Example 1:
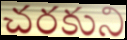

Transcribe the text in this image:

చరకుని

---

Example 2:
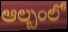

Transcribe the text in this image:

ఆల్బంలో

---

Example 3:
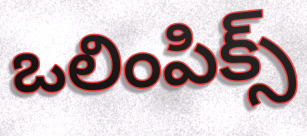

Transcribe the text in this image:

ఒలింపిక్స్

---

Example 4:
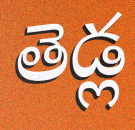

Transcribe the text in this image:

తెడ్ల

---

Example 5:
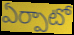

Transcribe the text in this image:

ఏర్పాటో